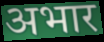
अभार